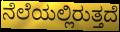
ನೆಲೆಯಲ್ಲಿರುತ್ತದೆ